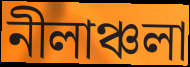
নীলাঞ্চলা